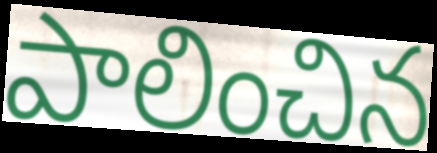
పాలించిన